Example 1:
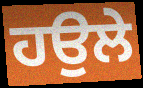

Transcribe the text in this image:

ਹਉਲੇ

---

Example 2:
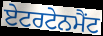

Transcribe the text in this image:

ਏਟਰਟੇਨਮੈਂਟ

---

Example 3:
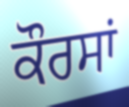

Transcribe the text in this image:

ਕੌਰਸਾਂ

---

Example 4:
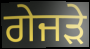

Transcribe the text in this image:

ਗੇਜੜੇ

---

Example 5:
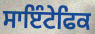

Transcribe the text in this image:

ਸਾਇੰਟੇਫਿਕ